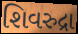
શિવરુદ્રા